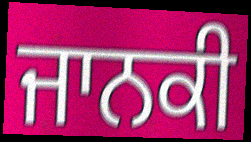
ਜਾਨਕੀ